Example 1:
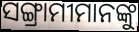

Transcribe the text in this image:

ସଙ୍ଗ୍ରାମୀମାନଙ୍କୁ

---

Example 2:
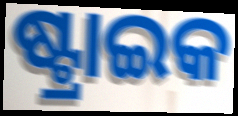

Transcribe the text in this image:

ଷ୍ଟ୍ରାଇକ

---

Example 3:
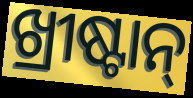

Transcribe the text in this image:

ଖ୍ରୀଷ୍ଟାନ୍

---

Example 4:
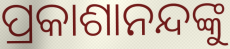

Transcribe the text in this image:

ପ୍ରକାଶାନନ୍ଦଙ୍କୁ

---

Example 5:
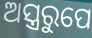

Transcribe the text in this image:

ଅସ୍ତ୍ରରୁପେ